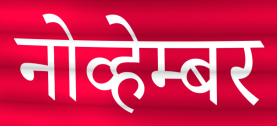
नोव्हेम्बर